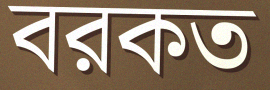
বরকত